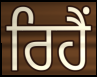
ਰਿਹੈਂ